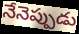
నేనెప్పుడు